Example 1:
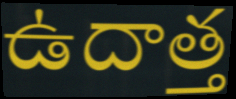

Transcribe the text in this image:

ఉదాత్త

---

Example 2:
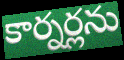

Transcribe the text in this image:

కార్నర్లను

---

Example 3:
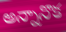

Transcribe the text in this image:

అన్నానొక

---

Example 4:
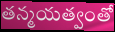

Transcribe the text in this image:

తన్మయత్వంతో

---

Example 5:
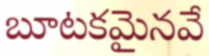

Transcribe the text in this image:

బూటకమైనవే